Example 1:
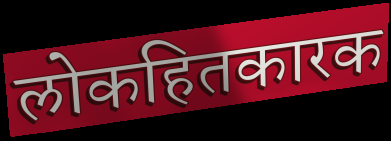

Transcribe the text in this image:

लोकहितकारक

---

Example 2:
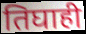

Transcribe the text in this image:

तिघाही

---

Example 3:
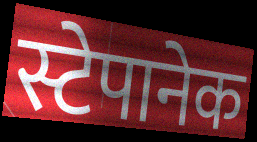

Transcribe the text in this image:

स्टेपानेक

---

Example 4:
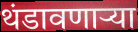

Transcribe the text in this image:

थंडावणाऱ्या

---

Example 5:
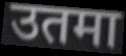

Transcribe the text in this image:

उतमा